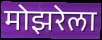
मोझरेला